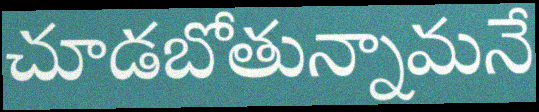
చూడబోతున్నామనే